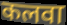
कलवा